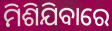
ମିଶିଯିବାରେ